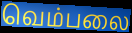
வெம்பலை